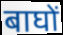
बाघों